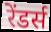
रेंडर्स